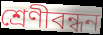
শ্রেণীবন্ধন